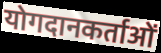
योगदानकर्ताओं